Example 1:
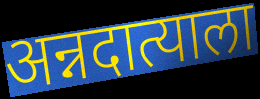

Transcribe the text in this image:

अन्नदात्याला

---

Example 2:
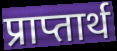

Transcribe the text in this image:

प्राप्तार्थ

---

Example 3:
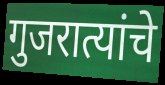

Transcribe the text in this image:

गुजरात्यांचे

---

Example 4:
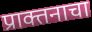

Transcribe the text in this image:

प्राक्तनाचा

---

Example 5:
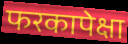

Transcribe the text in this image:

फरकापेक्षा